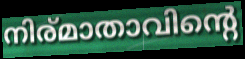
നിര്മാതാവിന്റെ